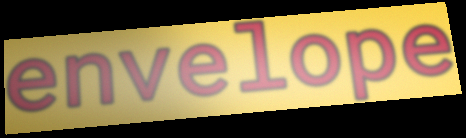
envelope